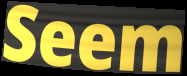
Seem